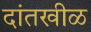
दांतखीळ